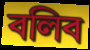
বলিব